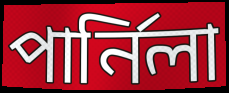
পার্নিলা